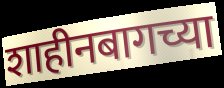
शाहीनबागच्या